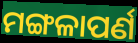
ମଙ୍ଗଳାପର୍ଣ